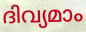
ദിവ്യമാം